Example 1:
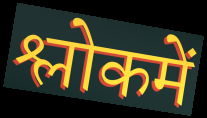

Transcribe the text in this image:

श्लोकमें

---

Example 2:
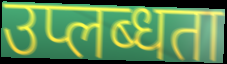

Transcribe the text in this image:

उप्लब्धता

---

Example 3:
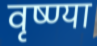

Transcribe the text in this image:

वृष्ण्या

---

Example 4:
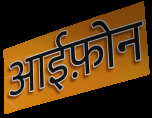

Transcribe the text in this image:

आईफ़ोन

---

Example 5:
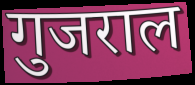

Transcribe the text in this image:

गुजराल